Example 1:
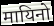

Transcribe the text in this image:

मायिनो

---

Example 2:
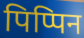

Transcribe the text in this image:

पिप्पिन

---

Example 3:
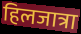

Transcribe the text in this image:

हिलजात्रा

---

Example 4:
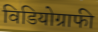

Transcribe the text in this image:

विडियोग्राफी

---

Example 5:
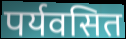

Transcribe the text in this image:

पर्यवसित